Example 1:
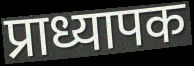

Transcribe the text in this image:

प्राध्यापक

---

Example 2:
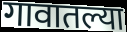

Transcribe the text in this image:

गावातल्या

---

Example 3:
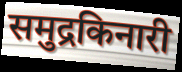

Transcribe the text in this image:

समुद्रकिनारी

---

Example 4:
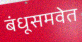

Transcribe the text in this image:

बंधूसमवेत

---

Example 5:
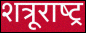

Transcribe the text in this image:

शत्रूराष्ट्र